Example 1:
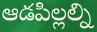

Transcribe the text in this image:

ఆడపిల్లల్ని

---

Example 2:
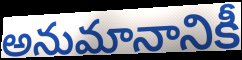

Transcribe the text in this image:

అనుమానానికీ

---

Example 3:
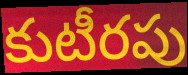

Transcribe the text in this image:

కుటీరపు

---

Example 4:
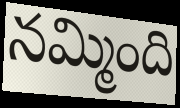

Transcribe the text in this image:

నమ్మింది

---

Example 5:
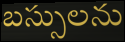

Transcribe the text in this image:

బస్సులను